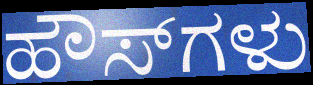
ಹೌಸ್‌ಗಳು